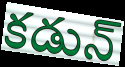
కడున్